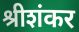
श्रीशंकर